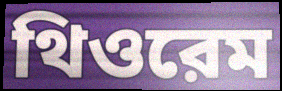
থিওরেম